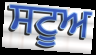
ਸਟੂਅ